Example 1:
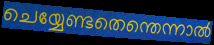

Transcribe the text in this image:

ചെയ്യേണ്ടതെന്തെന്നാൽ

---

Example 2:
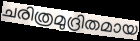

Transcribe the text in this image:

ചരിത്രമുദ്രിതമായ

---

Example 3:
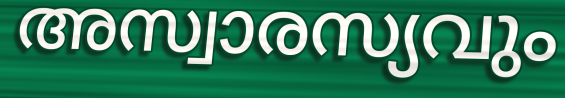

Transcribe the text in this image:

അസ്വാരസ്യവും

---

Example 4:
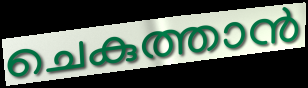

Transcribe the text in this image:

ചെകുത്താൻ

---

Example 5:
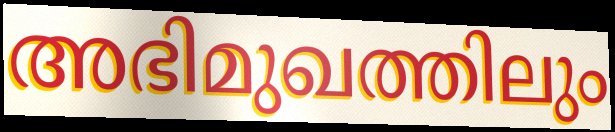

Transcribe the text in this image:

അഭിമുഖത്തിലും